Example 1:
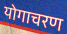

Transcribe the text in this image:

योगाचरण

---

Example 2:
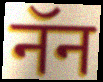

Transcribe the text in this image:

नॅन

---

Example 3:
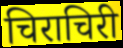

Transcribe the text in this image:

चिराचिरी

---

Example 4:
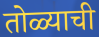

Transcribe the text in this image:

तोळ्याची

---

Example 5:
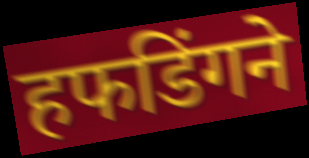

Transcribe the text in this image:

हफडिंगने